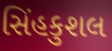
સિંહકુશલ